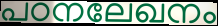
പഠനലേഖനം